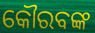
କୌରବଙ୍କ